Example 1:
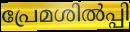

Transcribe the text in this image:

പ്രേമശിൽപ്പി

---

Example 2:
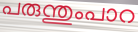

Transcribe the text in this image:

പരുന്തുംപാറ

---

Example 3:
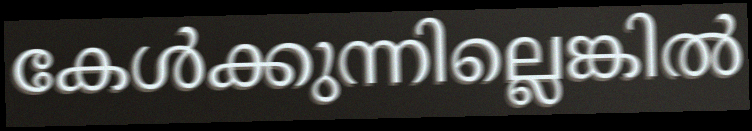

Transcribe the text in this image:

കേൾക്കുന്നില്ലെങ്കിൽ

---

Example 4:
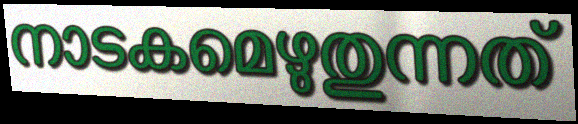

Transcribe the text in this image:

നാടകമെഴുതുന്നത്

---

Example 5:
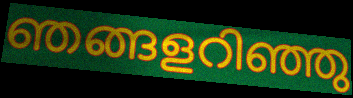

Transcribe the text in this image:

ഞങ്ങളറിഞ്ഞു